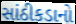
સાંઠીકડાનો